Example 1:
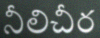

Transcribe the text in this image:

నీలిచీర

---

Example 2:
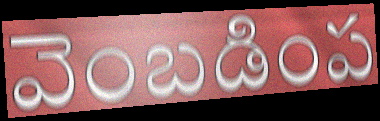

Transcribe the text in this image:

వెంబడింప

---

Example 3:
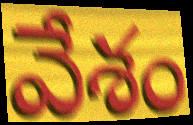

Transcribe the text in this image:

వేశం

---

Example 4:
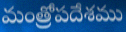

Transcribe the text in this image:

మంత్రోపదేశము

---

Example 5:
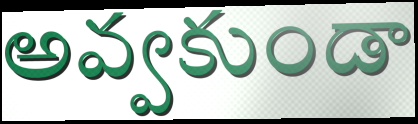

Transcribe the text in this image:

అవ్వకుండా